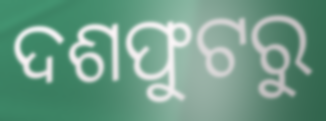
ଦଶଫୁଟରୁ